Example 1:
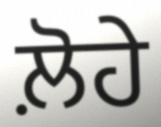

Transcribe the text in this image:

ਲ਼ੋਹੇ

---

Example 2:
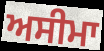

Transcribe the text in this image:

ਅਸੀਮਾ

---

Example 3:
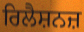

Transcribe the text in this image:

ਰਿਲੈਸ਼ਨਜ਼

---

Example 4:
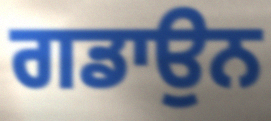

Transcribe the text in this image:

ਗਡਾਉਨ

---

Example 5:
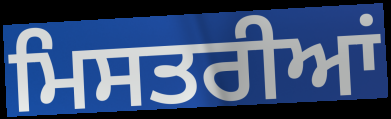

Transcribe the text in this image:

ਮਿਸਤਰੀਆਂ